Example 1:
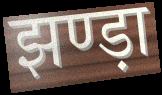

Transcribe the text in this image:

झण्ड़ा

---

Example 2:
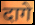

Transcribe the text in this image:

दागे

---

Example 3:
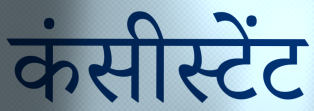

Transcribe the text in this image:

कंसीस्टेंट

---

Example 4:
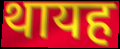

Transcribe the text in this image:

थायह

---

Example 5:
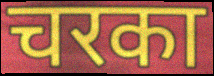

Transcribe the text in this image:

चरका